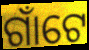
ଗାଁଟେ